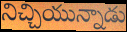
నిచ్చియున్నాడు